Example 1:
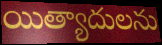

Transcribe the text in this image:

యిత్యాదులను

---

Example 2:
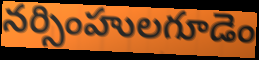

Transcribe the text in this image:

నర్సింహులగూడెం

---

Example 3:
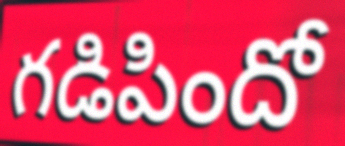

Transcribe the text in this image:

గడిపిందో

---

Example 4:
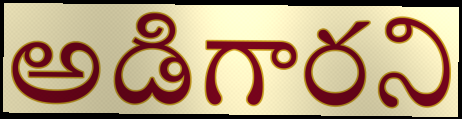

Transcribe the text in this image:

అడిగారని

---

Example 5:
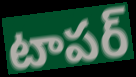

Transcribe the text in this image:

టాపర్